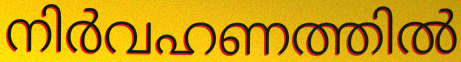
നിർവഹണത്തിൽ